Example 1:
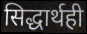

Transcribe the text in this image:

सिद्धार्थही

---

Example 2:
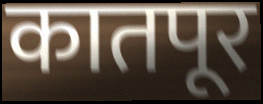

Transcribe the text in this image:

कातपूर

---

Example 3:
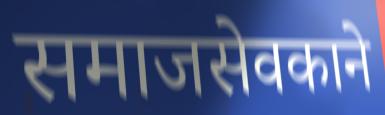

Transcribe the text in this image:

समाजसेवकाने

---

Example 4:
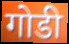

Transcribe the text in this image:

गोडी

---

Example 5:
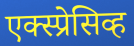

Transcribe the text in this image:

एक्स्प्रेसिव्ह